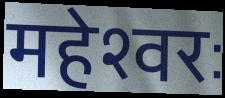
महेश्वरः